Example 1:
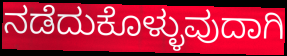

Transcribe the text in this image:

ನಡೆದುಕೊಳ್ಳುವುದಾಗಿ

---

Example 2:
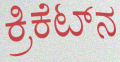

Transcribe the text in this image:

ಕ್ರಿಕೆಟ್‌ನ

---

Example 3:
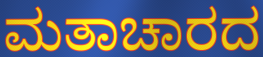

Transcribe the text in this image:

ಮತಾಚಾರದ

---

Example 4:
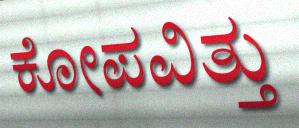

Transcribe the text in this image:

ಕೋಪವಿತ್ತು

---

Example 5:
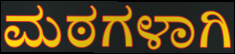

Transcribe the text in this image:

ಮಠಗಳಾಗಿ